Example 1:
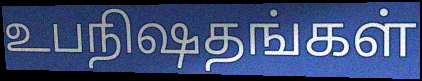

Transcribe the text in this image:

உபநிஷதங்கள்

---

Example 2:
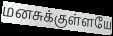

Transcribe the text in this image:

மனசுக்குள்ளயே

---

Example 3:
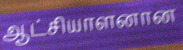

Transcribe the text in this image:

ஆட்சியாளனான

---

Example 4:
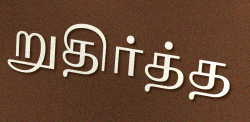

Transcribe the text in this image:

றுதிர்த்த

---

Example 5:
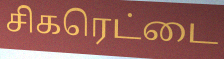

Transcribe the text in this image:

சிகரெட்டை